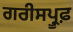
ਗਰੀਸਪ੍ਰੂਫ਼